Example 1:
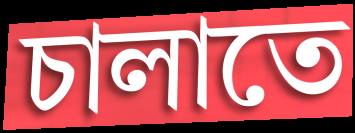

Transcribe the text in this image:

চালাতে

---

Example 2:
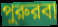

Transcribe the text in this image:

পুরুরবা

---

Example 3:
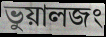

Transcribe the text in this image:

ভুয়ালজং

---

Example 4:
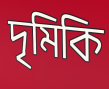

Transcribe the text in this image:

দৃমিকি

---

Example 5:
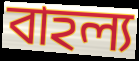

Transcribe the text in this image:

বাহল্য